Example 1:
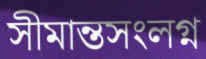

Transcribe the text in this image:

সীমান্তসংলগ্ন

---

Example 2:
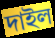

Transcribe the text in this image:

দাইল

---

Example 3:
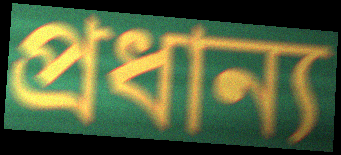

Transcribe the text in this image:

প্রধান্য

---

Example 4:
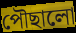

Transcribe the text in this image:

পৌছালো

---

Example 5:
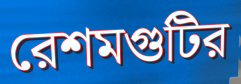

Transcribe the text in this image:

রেশমগুটির